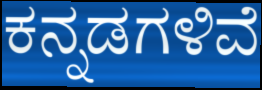
ಕನ್ನಡಗಳಿವೆ